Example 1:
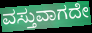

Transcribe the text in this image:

ವಸ್ತುವಾಗದೇ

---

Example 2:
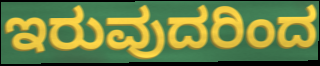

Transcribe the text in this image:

ಇರುವುದರಿಂದ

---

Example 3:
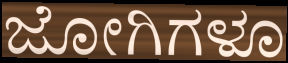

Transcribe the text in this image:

ಜೋಗಿಗಳೂ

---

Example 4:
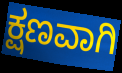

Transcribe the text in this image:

ಕ್ಷಣವಾಗಿ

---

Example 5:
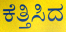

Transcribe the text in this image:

ಕೆತ್ತಿಸಿದ